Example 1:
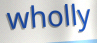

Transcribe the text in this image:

wholly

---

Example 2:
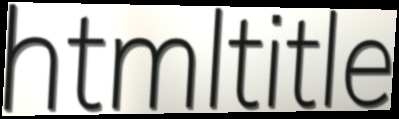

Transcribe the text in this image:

htmltitle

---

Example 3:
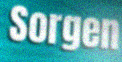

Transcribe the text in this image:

Sorgen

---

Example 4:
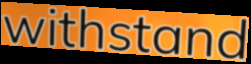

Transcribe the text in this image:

withstand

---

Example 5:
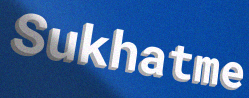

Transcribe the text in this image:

Sukhatme